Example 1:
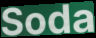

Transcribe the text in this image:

Soda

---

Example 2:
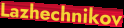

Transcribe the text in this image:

Lazhechnikov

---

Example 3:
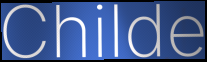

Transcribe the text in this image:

Childe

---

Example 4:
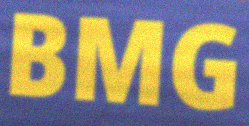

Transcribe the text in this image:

BMG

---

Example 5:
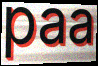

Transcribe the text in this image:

paa